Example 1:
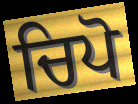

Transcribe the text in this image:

ਚਿਪੋ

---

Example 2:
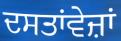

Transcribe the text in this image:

ਦਸਤਾਂਵੇਜ਼ਾਂ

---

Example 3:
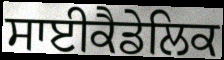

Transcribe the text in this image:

ਸਾਈਕੈਡੇਲਿਕ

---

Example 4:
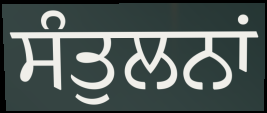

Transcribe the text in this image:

ਸੰਤੁਲਨਾਂ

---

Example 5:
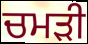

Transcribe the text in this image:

ਚਮਡ਼ੀ